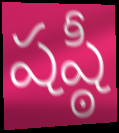
షష్ఠీ